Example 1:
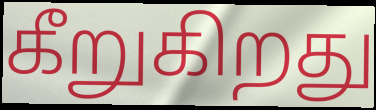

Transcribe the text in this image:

கீறுகிறது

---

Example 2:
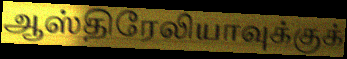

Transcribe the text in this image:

ஆஸ்திரேலியாவுக்குக்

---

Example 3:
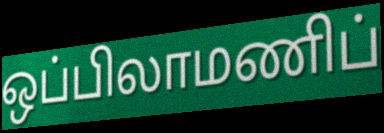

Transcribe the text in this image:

ஒப்பிலாமணிப்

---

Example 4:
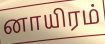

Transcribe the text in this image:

னாயிரம்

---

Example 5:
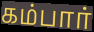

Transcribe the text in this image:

கம்பார்